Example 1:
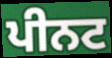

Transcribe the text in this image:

ਪੀਨਟ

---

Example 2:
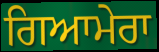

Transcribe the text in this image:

ਗਿਆਮੇਰਾ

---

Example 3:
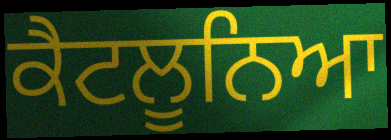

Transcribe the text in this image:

ਕੈਟਲੂਨਿਆ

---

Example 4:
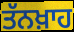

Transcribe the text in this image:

ਤੱਨਖ਼ਾਹ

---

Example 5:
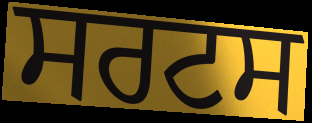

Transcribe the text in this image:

ਸਰਟਸ